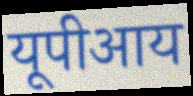
यूपीआय